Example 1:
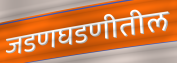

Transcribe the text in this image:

जडणघडणीतील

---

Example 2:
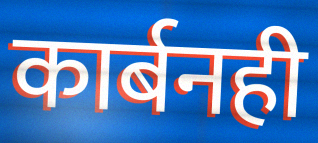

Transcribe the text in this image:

कार्बनही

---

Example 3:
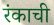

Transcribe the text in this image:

रंकाची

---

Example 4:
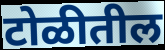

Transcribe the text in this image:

टोळीतील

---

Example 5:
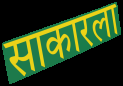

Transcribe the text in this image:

साकारला